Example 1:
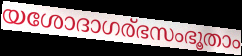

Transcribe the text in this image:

യശോദാഗര്ഭസംഭൂതാം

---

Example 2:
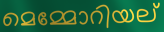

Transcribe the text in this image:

മെമ്മോറിയല്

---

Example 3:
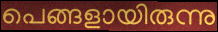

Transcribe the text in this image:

പെങ്ങളായിരുന്നു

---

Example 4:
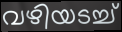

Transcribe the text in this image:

വഴിയടച്ച്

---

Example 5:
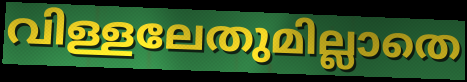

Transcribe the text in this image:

വിള്ളലേതുമില്ലാതെ